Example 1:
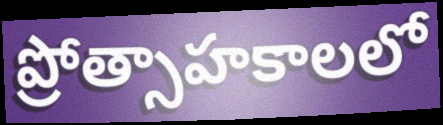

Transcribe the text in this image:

ప్రోత్సాహకాలలో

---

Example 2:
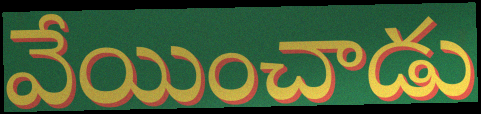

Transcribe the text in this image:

వేయించాడు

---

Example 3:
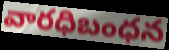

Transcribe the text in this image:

వారధిబంధన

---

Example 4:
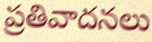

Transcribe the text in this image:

ప్రతివాదనలు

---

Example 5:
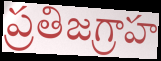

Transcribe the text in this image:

ప్రతిజగ్రాహ